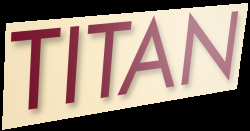
TITAN